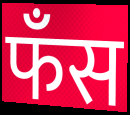
फँस